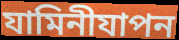
যামিনীযাপন